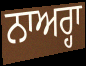
ਨਾਅਰ੍ਹਾ